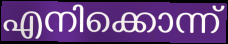
എനിക്കൊന്ന്